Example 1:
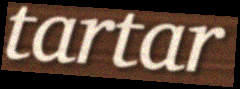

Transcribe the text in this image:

tartar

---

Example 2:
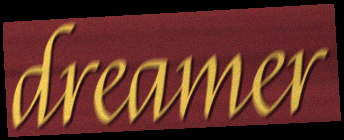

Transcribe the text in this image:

dreamer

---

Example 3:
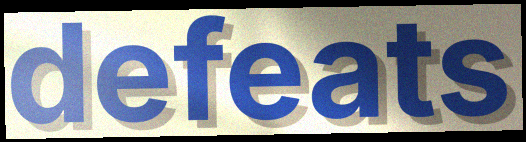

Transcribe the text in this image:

defeats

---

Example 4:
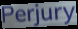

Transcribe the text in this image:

Perjury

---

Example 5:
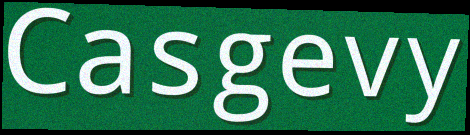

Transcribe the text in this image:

Casgevy